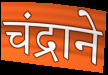
चंद्राने